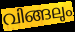
വിങ്ങലും